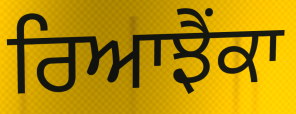
ਰਿਆਝੈਂਕਾ